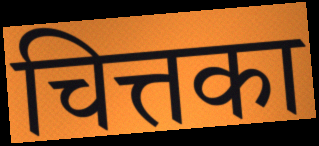
चित्तका